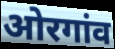
ओरगांव